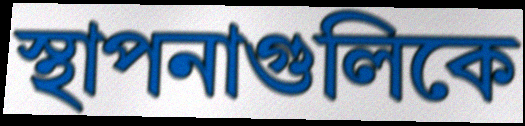
স্থাপনাগুলিকে